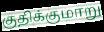
குதிக்குமாறு